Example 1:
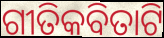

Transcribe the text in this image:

ଗୀତିକବିତାଟି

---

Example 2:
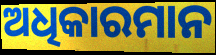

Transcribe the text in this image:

ଅଧିକାରମାନ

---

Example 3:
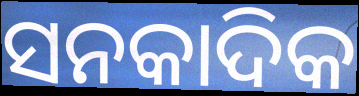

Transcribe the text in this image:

ସନକାଦିକ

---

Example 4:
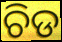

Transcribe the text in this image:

ଚିଡ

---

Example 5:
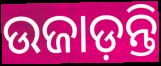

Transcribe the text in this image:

ଉଜାଡ଼ନ୍ତି